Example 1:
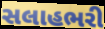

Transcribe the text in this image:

સલાહભરી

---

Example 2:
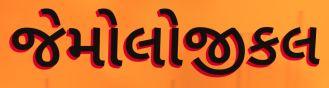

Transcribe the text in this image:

જેમોલોજીકલ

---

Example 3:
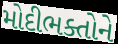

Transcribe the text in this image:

મોદીભક્તોને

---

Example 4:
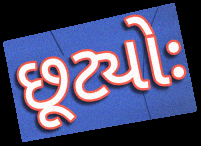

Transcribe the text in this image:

છૂટ્યોઃ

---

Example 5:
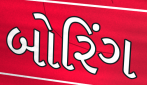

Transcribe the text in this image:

બોરિંગ